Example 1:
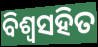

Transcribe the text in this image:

ବିଶ୍ଵସହିତ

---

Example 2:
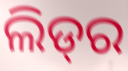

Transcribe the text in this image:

ଲିଡ୍‌ର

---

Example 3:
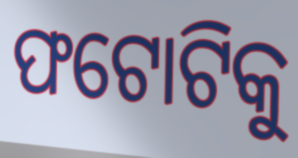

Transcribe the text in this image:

ଫଟୋଟିକୁ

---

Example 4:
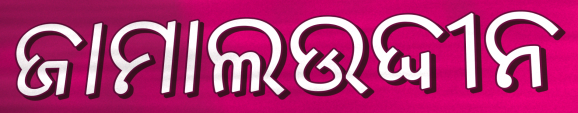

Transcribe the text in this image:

ଜାମାଲଉଦ୍ଦୀନ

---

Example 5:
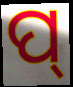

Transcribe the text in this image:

ପ୍